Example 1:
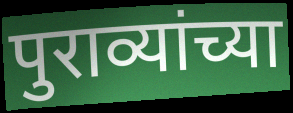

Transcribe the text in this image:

पुराव्यांच्या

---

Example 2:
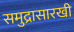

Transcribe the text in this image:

समुद्रासारखी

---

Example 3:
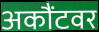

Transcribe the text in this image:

अकौंटवर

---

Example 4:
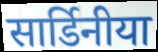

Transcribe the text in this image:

सार्डिनीया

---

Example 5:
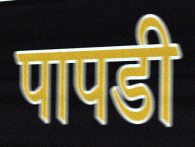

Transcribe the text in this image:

पापडी